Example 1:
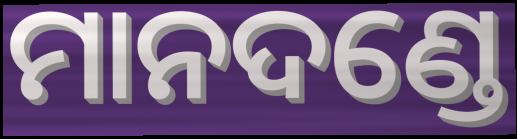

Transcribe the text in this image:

ମାନଦଣ୍ଡେ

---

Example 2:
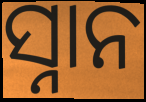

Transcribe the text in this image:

ସ୍ନାନ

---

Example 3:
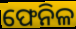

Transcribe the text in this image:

ଫେନିଳ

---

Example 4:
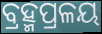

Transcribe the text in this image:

ବ୍ରହ୍ମପ୍ରଳୟ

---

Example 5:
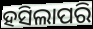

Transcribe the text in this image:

ହସିଲାପରି